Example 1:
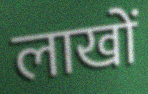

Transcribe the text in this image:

लाखों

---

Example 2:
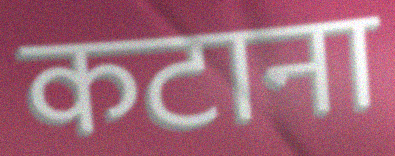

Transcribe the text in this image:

कटाना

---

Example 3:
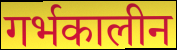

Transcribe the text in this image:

गर्भकालीन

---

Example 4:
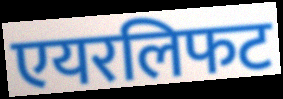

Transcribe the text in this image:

एयरलिफट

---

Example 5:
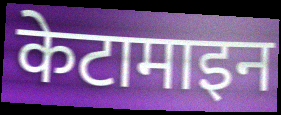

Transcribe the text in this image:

केटामाइन